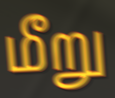
மீறு